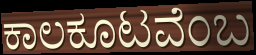
ಕಾಲಕೂಟವೆಂಬ